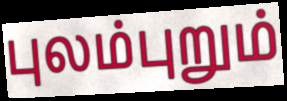
புலம்புறும்